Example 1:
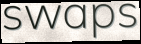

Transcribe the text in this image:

swaps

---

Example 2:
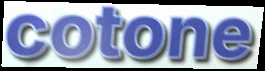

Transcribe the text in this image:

cotone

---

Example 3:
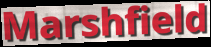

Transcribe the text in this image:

Marshfield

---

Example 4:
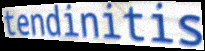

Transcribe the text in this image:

tendinitis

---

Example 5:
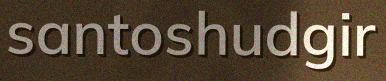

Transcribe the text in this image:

santoshudgir